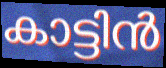
കാട്ടിൻ